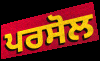
ਪਰਸੋਲ